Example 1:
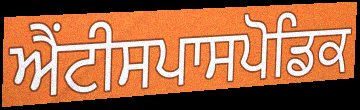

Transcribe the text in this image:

ਐਂਟੀਸਪਾਸਪੋਡਿਕ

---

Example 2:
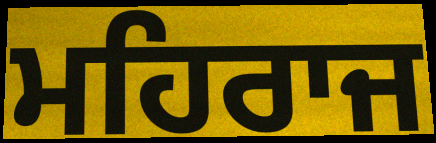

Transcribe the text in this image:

ਮਹਿਰਾਜ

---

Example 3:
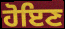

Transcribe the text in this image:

ਹੋਇਣ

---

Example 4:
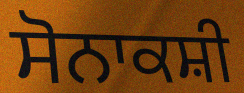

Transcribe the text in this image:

ਸੋਨਾਕਸ਼ੀ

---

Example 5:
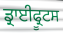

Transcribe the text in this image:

ਡ੍ਰਾਈਫ੍ਰੂਟਸ